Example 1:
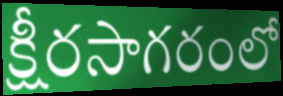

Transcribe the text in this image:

క్షీరసాగరంలో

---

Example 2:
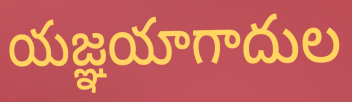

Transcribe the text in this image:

యజ్ఞయాగాదుల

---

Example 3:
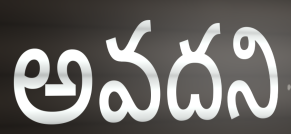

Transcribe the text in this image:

అవదని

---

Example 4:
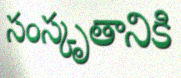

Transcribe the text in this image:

సంస్కృతానికి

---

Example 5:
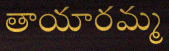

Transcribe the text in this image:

తాయారమ్మ